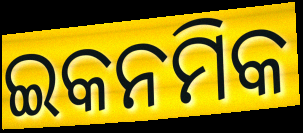
ଇକନମିକ